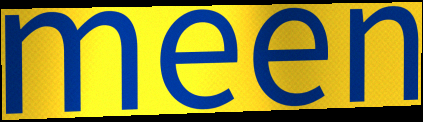
meen